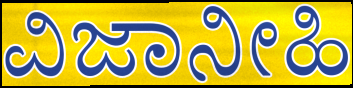
ವಿಜಾನೀಹಿ